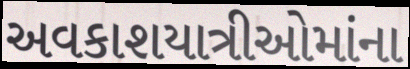
અવકાશયાત્રીઓમાંના